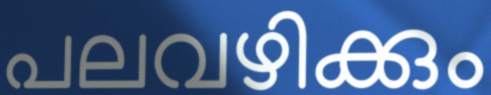
പലവഴിക്കും